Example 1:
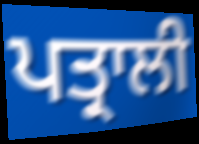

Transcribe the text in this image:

ਪਤ੍ਰਾਲੀ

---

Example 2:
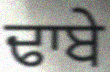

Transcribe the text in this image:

ਢਾਬੇ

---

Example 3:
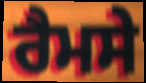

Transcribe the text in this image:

ਰੈਮਸੇ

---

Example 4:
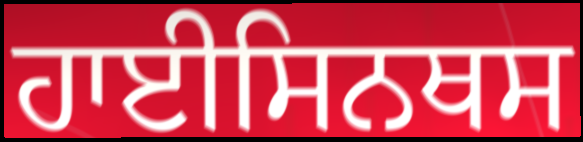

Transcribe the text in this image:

ਹਾਈਸਿਨਥਸ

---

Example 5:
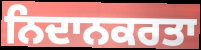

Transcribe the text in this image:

ਨਿਦਾਨਕਰਤਾ